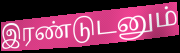
இரண்டுடனும்